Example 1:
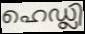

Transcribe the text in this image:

ഹെഡ്ലി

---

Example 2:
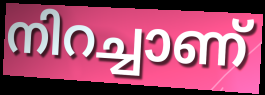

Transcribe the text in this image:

നിറച്ചാണ്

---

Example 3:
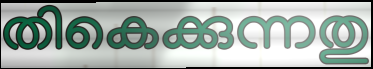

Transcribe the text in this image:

തികെക്കുന്നതു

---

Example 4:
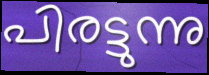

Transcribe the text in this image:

പിരട്ടുന്നു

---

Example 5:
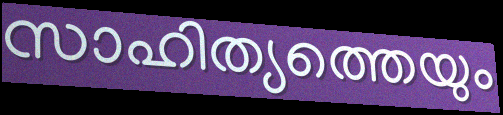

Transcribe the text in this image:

സാഹിത്യത്തെയും